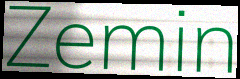
Zemin